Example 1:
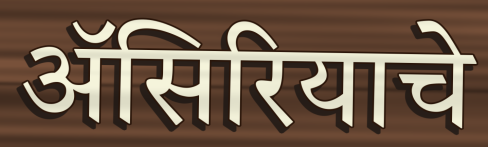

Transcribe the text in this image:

ॲसिरियाचे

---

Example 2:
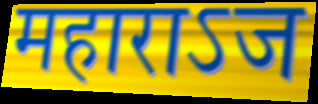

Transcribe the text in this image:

महाराऽज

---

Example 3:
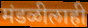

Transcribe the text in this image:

मंडळीलाही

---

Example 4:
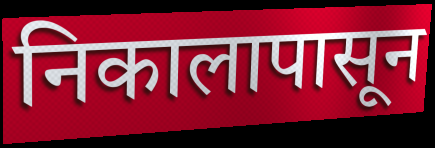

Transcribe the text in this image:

निकालापासून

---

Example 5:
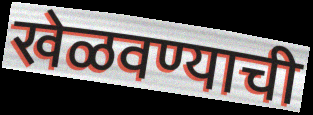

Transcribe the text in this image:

खेळवण्याची